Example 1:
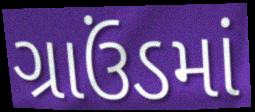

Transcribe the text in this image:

ગ્રાઉંડમાં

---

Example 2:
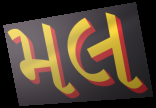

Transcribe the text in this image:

મલ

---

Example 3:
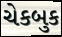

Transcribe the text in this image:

ચેકબુક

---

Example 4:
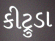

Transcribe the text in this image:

કીટ્રુડા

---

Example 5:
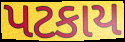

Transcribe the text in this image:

પટકાય